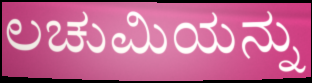
ಲಚುಮಿಯನ್ನು